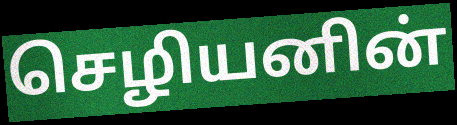
செழியனின்